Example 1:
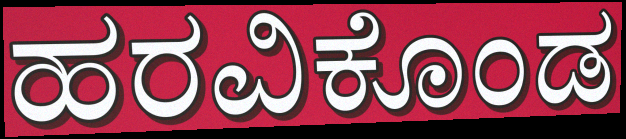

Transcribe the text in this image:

ಹರವಿಕೊಂಡ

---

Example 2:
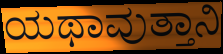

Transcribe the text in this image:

ಯಥಾವುತ್ತಾನಿ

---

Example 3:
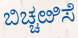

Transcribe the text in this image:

ಬಿಚ್ಚೞಿಸೆ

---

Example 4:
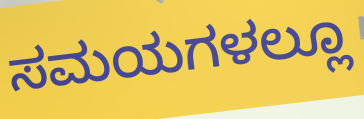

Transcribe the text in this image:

ಸಮಯಗಳಲ್ಲೂ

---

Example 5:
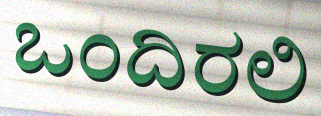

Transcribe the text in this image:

ಒಂದಿರಲಿ